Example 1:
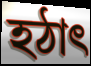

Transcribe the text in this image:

হঠাৎ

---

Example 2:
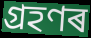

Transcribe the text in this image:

গ্ৰহণৰ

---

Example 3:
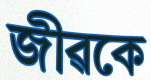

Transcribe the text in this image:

জীৱকে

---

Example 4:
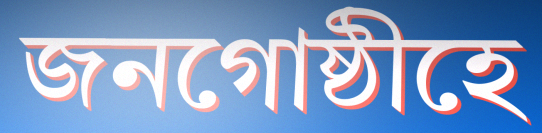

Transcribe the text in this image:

জনগোষ্ঠীহে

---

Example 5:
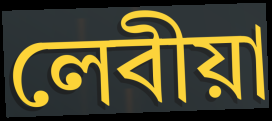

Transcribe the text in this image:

লেবীয়া